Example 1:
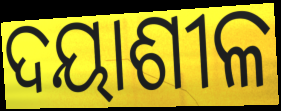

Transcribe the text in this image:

ଦୟାଶୀଳ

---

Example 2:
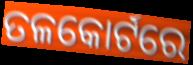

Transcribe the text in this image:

ତଳକୋର୍ଟରେ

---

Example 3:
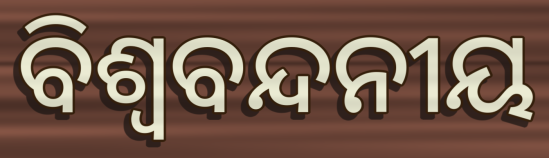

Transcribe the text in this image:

ବିଶ୍ୱବନ୍ଦନୀୟ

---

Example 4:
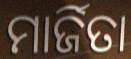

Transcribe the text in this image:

ମାର୍ଜିତା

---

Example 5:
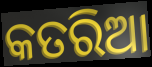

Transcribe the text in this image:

କତରିଆ